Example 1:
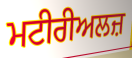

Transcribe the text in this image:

ਮਟੀਰੀਅਲਜ਼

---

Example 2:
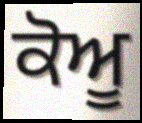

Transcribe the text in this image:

ਕੋਅੂ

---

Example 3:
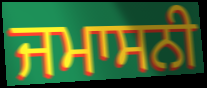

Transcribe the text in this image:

ਜਮਾਸਨੀ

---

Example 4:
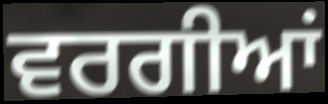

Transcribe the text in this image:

ਵਰਗੀਆਂ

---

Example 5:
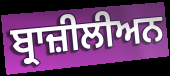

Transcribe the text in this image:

ਬ੍ਰਾਜ਼ੀਲੀਅਨ